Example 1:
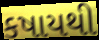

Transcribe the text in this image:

કષાયથી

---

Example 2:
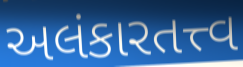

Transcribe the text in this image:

અલંકારતત્ત્વ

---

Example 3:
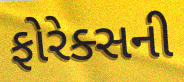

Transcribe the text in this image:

ફોરેક્સની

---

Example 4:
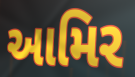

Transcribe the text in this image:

આમિર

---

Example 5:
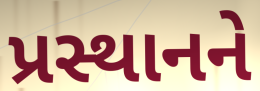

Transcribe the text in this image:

પ્રસ્થાનને